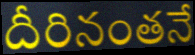
దీరినంతనే